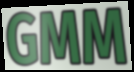
GMM